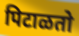
पिटाळतो